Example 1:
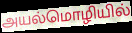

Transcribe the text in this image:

அயல்மொழியில்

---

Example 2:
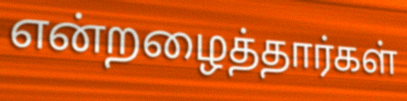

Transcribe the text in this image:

என்றழைத்தார்கள்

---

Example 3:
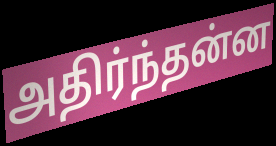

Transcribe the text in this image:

அதிர்ந்தன்ன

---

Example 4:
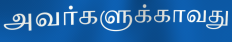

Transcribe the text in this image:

அவர்களுக்காவது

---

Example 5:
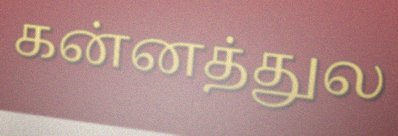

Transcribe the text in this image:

கன்னத்துல